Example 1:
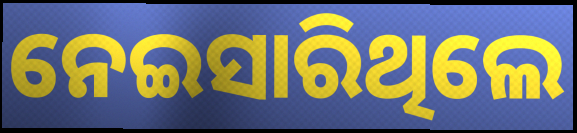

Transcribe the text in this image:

ନେଇସାରିଥିଲେ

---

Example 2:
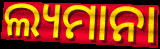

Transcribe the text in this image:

ଲ୍ୟମାନା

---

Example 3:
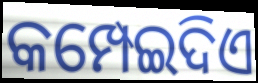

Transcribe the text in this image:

କମ୍ପେଇଦିଏ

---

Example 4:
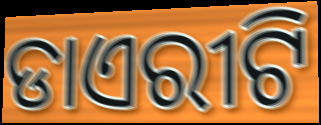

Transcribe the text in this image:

ଡାଏରୀଟି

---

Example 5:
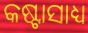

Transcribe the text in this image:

କଷ୍ଟାସାଧ୍ୟ